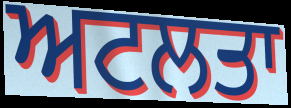
ਅਟਲਤਾ